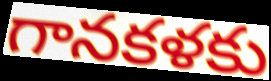
గానకళకు